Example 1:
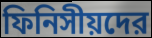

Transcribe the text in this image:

ফিনিসীয়দের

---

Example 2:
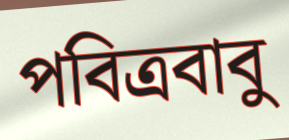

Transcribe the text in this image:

পবিত্রবাবু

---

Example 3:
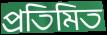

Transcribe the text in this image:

প্রতিমিত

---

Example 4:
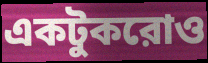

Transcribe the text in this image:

একটুকরোও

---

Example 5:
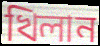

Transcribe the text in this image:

খিলান